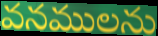
వనములను